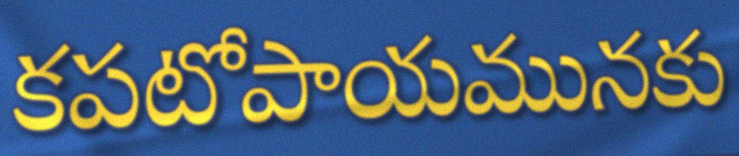
కపటోపాయమునకు